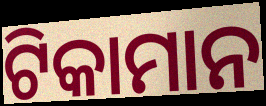
ଟିକାମାନ